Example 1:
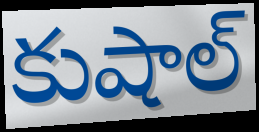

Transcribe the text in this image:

కుషాల్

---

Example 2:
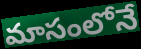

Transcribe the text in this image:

మాసంలోనే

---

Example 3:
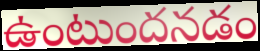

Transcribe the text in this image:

ఉంటుందనడం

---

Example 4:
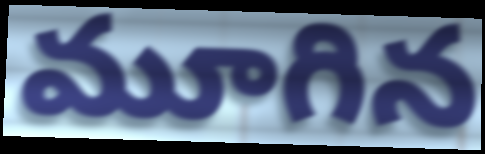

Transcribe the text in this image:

మూగిన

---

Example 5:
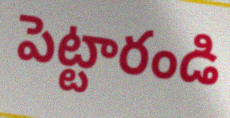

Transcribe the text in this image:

పెట్టారండి